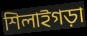
শিলাইগড়া